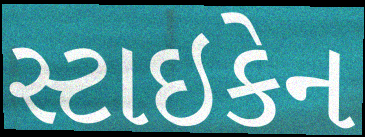
સ્ટાઇકેન